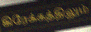
கிரேக்கத்திலும்